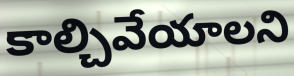
కాల్చివేయాలని